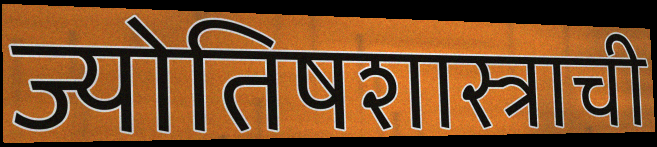
ज्योतिषशास्त्राची